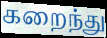
கறைந்து